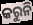
କରୁନି